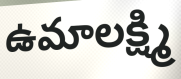
ఉమాలక్ష్మి